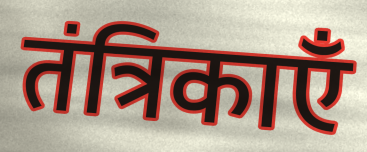
तंत्रिकाएँ